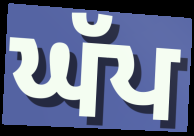
ਘੱਪ